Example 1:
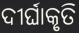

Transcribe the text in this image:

ଦୀର୍ଘାକୃତି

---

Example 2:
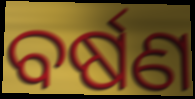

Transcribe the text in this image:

ବର୍ଷଣ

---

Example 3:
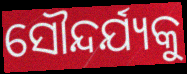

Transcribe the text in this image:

ସୌନ୍ଦର୍ଯ୍ଯକୁ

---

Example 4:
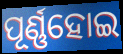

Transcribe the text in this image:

ପୂର୍ଣ୍ଣହୋଇ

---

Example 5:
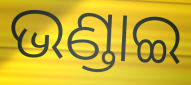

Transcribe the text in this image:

ଭଣ୍ଡାଇ